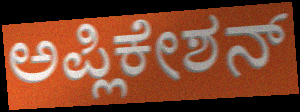
ಅಪ್ಲಿಕೇಶನ್